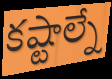
కష్టాల్నే